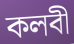
কলবী